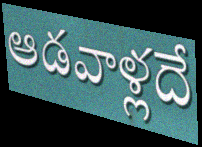
ఆడవాళ్లదే